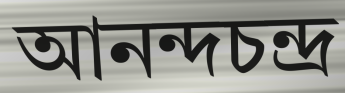
আনন্দচন্দ্র